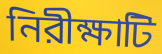
নিরীক্ষাটি